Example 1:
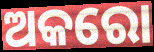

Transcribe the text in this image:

ଅକରୋ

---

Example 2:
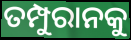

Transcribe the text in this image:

ତମ୍ପୁରାନକୁ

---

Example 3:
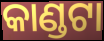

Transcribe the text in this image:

କାଣ୍ଡଟା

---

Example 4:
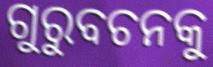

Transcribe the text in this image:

ଗୁରୁବଚନକୁ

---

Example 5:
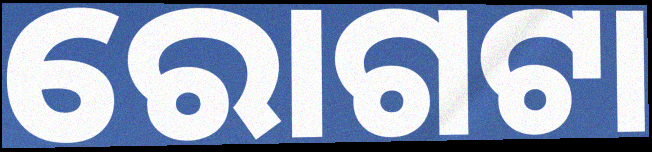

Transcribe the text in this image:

ରୋଗଟା